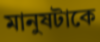
মানুষটাকে